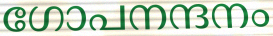
ഗോപനന്ദനം